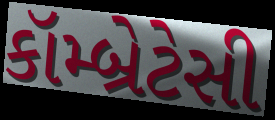
કૉમ્બ્રેટેસી